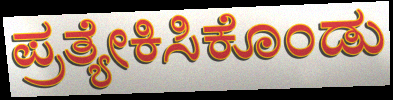
ಪ್ರತ್ಯೇಕಿಸಿಕೊಂಡು